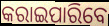
କରାଇପାରିବେ